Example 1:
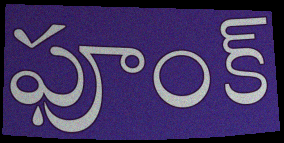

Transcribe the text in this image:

ఫూంక్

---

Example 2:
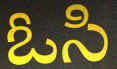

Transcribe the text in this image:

ఓసి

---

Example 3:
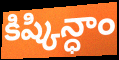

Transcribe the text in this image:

కిష్కిన్ధాం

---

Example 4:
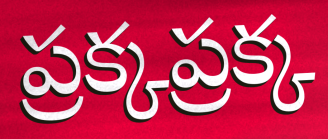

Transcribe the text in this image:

ప్రక్కప్రక్క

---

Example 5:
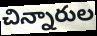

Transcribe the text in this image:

చిన్నారుల